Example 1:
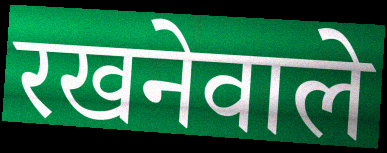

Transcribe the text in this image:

रखनेवाले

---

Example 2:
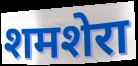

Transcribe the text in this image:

शमशेरा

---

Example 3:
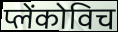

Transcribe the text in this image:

प्लेंकोविच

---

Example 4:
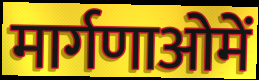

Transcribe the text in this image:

मार्गणाओमें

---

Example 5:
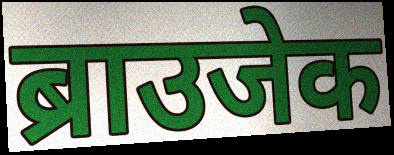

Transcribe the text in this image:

ब्राउजेक